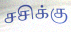
சசிக்கு